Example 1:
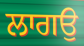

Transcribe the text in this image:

ਲਾਗਉ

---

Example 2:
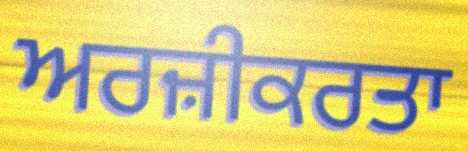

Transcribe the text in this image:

ਅਰਜ਼ੀਕਰਤਾ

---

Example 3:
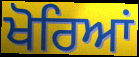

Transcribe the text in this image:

ਖੋਰਿਆਂ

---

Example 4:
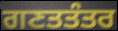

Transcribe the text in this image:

ਗਣਤਤੰਤਰ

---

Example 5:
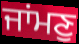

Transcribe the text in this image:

ਜਾਂਮਣੁ